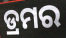
ଡ୍ରମର